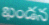
ఖండన